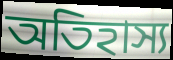
অতিহাস্য